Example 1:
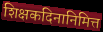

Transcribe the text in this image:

शिक्षकदिनानिमित्त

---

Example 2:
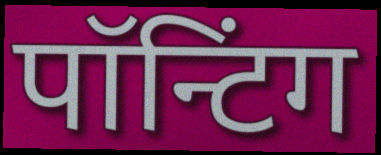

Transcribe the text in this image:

पॉन्टिंग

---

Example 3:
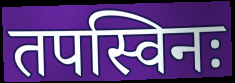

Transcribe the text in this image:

तपस्विनः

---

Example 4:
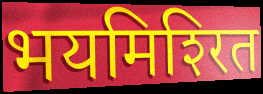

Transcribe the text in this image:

भयमिश्रित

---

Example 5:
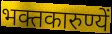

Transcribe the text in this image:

भक्तकारुण्यें